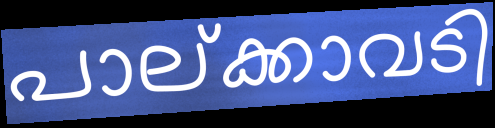
പാല്ക്കാവടി